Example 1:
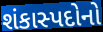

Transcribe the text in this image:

શંકાસ્પદોનો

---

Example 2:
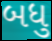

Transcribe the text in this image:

બધુ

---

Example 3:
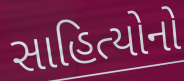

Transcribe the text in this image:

સાહિત્યોનો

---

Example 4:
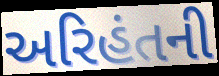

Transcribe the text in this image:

અરિહંતની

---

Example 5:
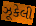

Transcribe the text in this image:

ઝૂકેલી